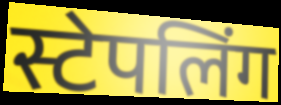
स्टेपलिंग